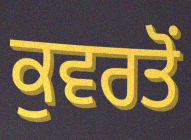
ਕੁਵਰਤੋਂ